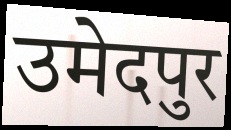
उमेदपुर